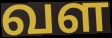
வள